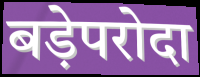
बड़ेपरोदा